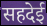
सहदेई